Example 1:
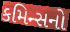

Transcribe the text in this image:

કમિન્સનો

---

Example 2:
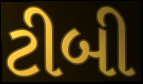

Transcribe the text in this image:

ટીબી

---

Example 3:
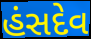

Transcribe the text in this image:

હંસદેવ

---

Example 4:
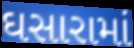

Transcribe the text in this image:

ઘસારામાં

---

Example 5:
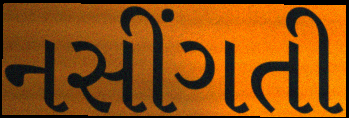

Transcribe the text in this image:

નસીંગતી